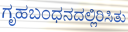
ಗೃಹಬಂಧನದಲ್ಲಿರಿಸಿತು